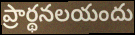
ప్రార్థనలయందు